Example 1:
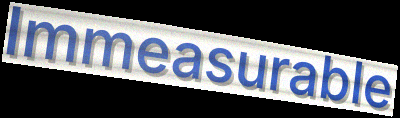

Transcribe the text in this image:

Immeasurable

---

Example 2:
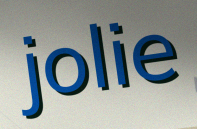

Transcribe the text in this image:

jolie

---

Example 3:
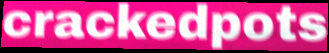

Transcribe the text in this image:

crackedpots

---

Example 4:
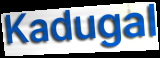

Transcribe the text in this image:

Kadugal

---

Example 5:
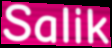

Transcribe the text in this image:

Salik